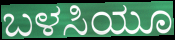
ಬಳಸಿಯೂ